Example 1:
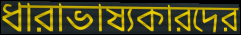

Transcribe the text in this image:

ধারাভাষ্যকারদের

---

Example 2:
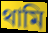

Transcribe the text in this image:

থামি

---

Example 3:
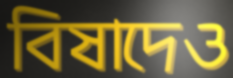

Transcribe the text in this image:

বিষাদেও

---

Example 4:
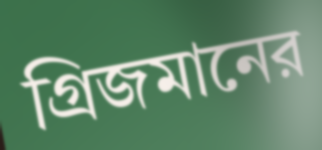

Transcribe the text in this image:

গ্রিজমানের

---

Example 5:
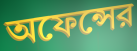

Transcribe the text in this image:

অফেন্সের